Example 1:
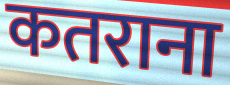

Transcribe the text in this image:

कतराना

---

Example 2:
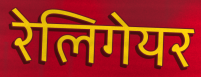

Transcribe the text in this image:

रेलिगेयर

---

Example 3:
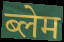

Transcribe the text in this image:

ब्लेम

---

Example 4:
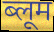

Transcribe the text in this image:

ब्लूम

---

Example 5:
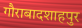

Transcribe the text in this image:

गौराबादशाहपुर